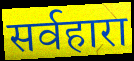
सर्वहारा